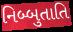
નિબ્બુતાતિ